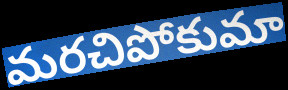
మరచిపోకుమా